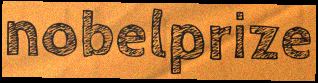
nobelprize